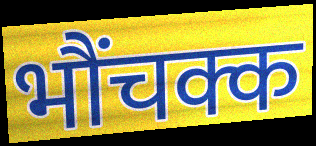
भौंचक्क